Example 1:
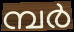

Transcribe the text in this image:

മ്പർ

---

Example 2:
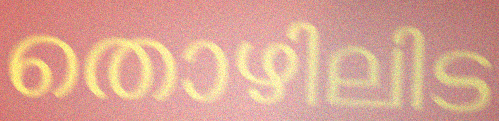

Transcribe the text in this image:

തൊഴിലിട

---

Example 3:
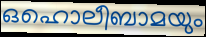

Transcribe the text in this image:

ഒഹൊലീബാമയും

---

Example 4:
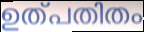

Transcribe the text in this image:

ഉത്പതിതം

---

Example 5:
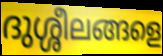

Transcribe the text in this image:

ദുശ്ശീലങ്ങളെ